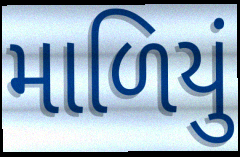
માળિયું